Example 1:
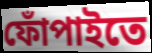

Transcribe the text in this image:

ফোঁপাইতে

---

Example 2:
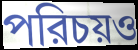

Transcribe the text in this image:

পরিচয়ও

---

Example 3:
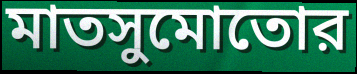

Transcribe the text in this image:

মাতসুমোতোর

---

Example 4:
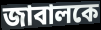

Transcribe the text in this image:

জাবালকে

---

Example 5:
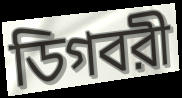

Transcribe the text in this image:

ডিগবরী